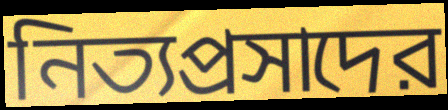
নিত্যপ্রসাদের